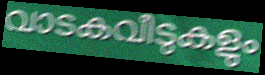
വാടകവീടുകളും